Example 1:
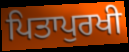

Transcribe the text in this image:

ਪਿਤਾਪੁਰਖੀ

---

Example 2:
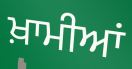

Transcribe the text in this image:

ਖ਼ਾਮੀਆਂ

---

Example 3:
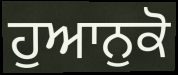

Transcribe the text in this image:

ਹੁਆਨੁਕੋ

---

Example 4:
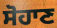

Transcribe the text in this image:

ਸੋਹਾਣ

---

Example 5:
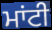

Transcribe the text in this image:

ਮਾਂਟੀ